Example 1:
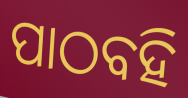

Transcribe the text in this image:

ପାଠବହି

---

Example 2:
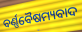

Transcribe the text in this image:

ବର୍ଣ୍ଣବୈଷମ୍ୟବାଦ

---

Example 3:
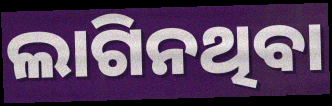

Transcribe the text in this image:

ଲାଗିନଥିବା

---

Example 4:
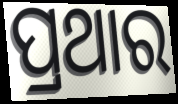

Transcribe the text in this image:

ପ୍ରଥାର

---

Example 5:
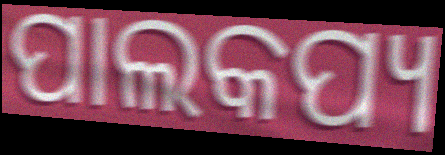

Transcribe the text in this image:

ପାଲକପ୍ୟ